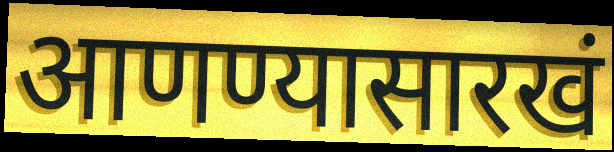
आणण्यासारखं